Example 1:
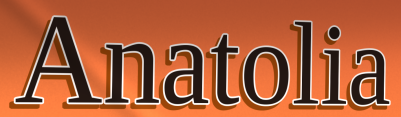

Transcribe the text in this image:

Anatolia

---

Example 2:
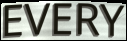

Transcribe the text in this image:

EVERY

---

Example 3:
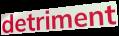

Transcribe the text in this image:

detriment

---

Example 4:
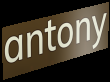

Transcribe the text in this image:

antony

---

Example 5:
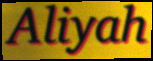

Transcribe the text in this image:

Aliyah